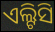
ଏଲ୍ଟିସି